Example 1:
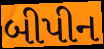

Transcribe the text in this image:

બીપીન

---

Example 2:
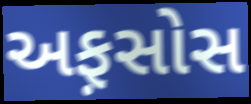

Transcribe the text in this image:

અફ઼સોસ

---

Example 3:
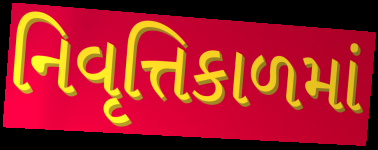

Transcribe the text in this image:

નિવૃત્તિકાળમાં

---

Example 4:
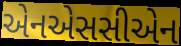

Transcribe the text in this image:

એનએસસીએન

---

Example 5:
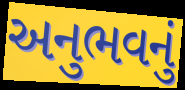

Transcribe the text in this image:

અનુભવનું